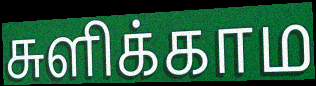
சுளிக்காம